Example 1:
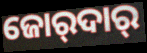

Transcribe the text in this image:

ଜୋର୍‍ଦାର୍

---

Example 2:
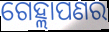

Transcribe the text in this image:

ଗେହ୍ଲାପଣର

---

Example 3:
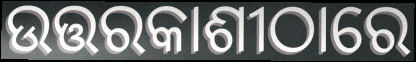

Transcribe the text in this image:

ଉତ୍ତରକାଶୀଠାରେ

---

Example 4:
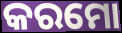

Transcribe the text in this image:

କରମୋ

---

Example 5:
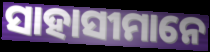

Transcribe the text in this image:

ସାହାସୀମାନେ